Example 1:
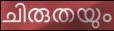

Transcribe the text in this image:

ചിരുതയും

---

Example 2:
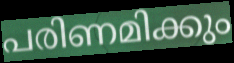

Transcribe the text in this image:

പരിണമിക്കും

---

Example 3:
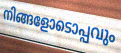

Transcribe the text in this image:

നിങ്ങളോടൊപ്പവും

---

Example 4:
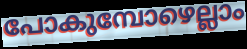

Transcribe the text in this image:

പോകുമ്പോഴെല്ലാം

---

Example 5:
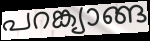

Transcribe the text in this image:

പറങ്ക്യാങ്ങ